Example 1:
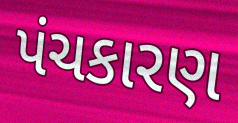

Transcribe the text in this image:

પંચકારણ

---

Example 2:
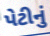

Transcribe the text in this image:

પેટીનું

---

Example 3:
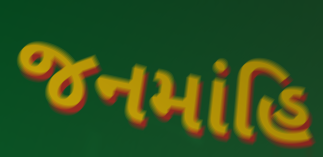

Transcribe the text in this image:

જનમાંહિ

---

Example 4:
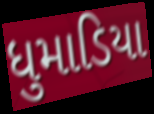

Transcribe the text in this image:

ધુમાડિયા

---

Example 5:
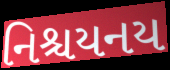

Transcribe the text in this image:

નિશ્ચયનય